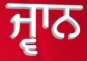
ਜ੍ਵਾਨ